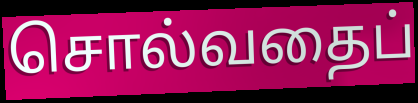
சொல்வதைப்